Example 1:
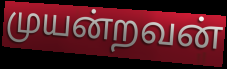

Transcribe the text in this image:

முயன்றவன்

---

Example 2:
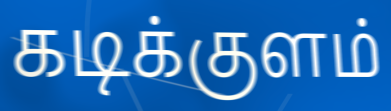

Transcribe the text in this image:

கடிக்குளம்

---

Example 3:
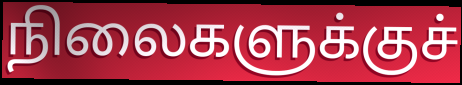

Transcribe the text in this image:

நிலைகளுக்குச்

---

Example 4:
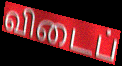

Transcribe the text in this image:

விடைப்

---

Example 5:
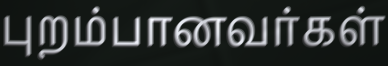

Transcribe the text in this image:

புறம்பானவர்கள்